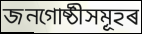
জনগোষ্ঠীসমূহৰ